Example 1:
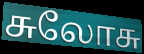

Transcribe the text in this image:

சுலோசு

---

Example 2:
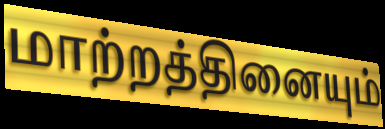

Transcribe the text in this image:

மாற்றத்தினையும்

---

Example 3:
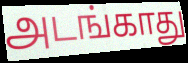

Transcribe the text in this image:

அடங்காது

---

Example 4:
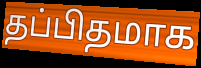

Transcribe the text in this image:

தப்பிதமாக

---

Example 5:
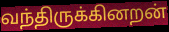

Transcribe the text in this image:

வந்திருக்கினறன்